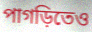
পাগড়িতেও